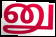
னு